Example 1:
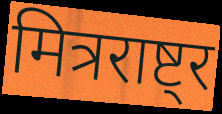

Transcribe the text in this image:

मित्रराष्ट्र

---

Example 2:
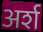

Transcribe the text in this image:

अर्श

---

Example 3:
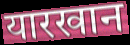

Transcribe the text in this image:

यारखान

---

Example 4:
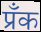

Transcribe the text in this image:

प्रँक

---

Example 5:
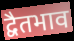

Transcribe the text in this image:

द्वैतभाव